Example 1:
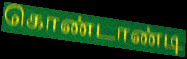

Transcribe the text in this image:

கொண்டாண்டி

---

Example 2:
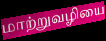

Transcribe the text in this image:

மாற்றுவழியை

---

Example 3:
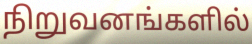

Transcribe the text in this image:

நிறுவனங்களில்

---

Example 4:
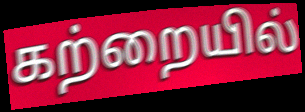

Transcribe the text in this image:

கற்றையில்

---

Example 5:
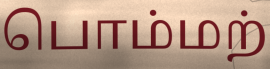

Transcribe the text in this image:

பொம்மற்